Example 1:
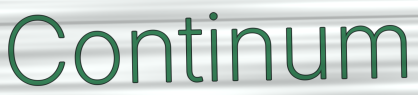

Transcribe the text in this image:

Continum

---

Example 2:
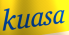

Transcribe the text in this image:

kuasa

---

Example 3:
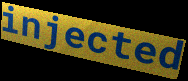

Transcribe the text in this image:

injected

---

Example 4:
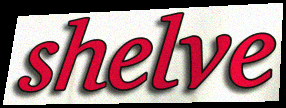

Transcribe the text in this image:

shelve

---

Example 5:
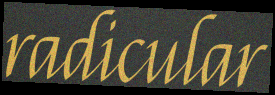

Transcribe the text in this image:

radicular